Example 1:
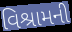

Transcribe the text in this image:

વિશ્રામની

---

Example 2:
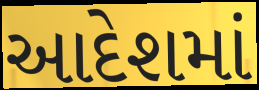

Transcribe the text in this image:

આદેશમાં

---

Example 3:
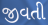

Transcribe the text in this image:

જીવતી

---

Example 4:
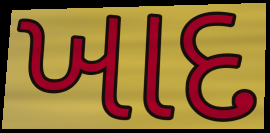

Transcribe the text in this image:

ખાદ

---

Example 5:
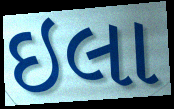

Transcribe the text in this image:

ઇલા